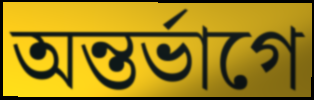
অন্তর্ভাগে